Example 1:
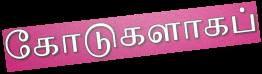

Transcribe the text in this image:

கோடுகளாகப்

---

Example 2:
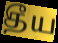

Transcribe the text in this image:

தீய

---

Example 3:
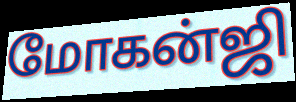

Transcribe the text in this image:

மோகன்ஜி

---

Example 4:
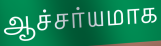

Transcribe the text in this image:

ஆச்சர்யமாக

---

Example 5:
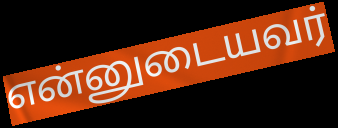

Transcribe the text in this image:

என்னுடையவர்